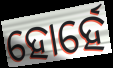
ହୋର୍ହେ